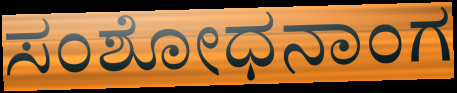
ಸಂಶೋಧನಾಂಗ